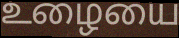
உழையை